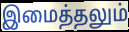
இமைத்தலும்